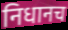
निधानच